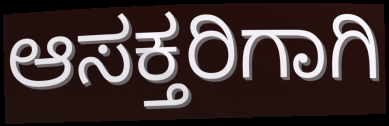
ಆಸಕ್ತರಿಗಾಗಿ